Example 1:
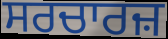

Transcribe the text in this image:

ਸਰਚਾਰਜ਼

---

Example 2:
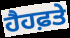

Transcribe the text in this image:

ਹੈਹਫ਼ਤੇ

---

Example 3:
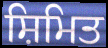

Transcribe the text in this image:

ਸ਼ਿਮਿਤ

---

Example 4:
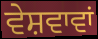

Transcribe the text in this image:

ਵੇਸ਼ਵਾਵਾਂ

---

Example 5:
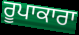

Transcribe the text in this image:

ਰੂਪਾਕਾਰਾ